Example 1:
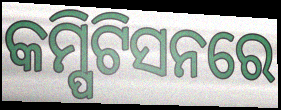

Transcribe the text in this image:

କମ୍ପିଟିସନରେ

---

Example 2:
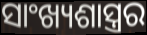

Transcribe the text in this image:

ସାଂଖ୍ୟଶାସ୍ତ୍ରର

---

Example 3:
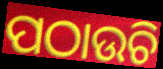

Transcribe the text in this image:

ପଠାଉଚି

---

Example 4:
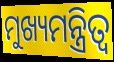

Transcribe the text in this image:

ମୁଖ୍ୟମନ୍ତ୍ରିତ୍ବ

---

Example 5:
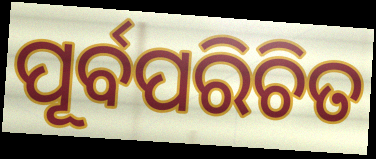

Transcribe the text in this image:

ପୂର୍ବପରିଚିତ